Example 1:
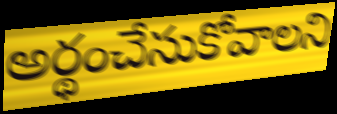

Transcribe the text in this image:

అర్థంచేసుకోవాలని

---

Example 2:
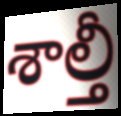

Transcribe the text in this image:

శాల్తీ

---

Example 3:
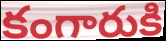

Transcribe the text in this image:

కంగారుకి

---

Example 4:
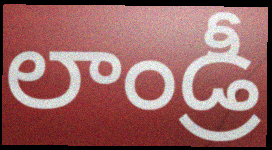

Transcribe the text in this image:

లాండ్రీ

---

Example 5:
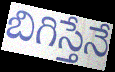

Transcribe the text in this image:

బిగిస్తేనే